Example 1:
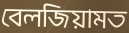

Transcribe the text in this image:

বেলজিয়ামত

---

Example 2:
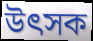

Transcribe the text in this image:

উৎসক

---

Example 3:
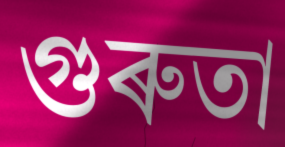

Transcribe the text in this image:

গুৰুতা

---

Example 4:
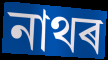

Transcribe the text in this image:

নাথৰ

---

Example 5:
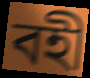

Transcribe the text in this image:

বহী